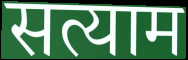
सत्याम